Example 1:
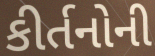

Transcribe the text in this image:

કીર્તનોની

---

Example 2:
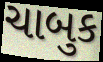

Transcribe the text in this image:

ચાબુક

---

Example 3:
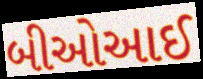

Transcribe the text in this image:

બીઓઆઈ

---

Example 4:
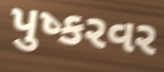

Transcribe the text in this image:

પુષ્કરવર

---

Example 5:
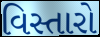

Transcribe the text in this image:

વિસ્તારો